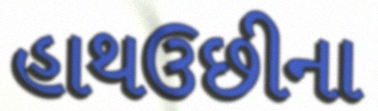
હાથઉછીના